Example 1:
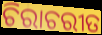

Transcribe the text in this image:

ଚିରାଚରୀତ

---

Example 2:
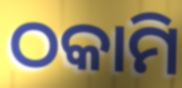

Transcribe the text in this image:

ଠକାମି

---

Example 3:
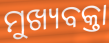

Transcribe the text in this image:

ମୁଖ୍ୟବକ୍ତା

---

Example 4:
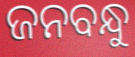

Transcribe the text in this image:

ଜନବନ୍ଧୁ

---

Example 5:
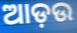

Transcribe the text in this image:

ଆଡ଼ଉ